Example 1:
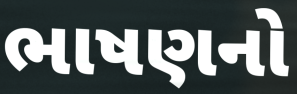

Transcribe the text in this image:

ભાષણનો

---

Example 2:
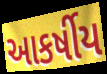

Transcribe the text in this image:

આકર્ષીય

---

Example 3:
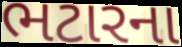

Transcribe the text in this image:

ભટારના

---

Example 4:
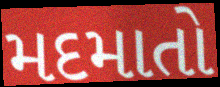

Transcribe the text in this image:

મદમાતો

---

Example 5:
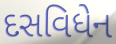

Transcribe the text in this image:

દસવિધેન